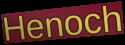
Henoch